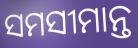
ସମସୀମାନ୍ତ